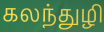
கலந்துழி